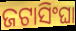
ଜଟାସିଂଘା